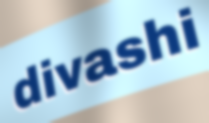
divashi